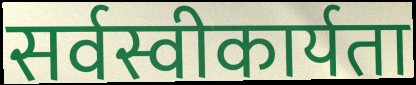
सर्वस्वीकार्यता